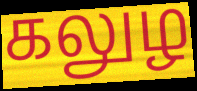
கலுழ